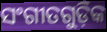
ସଂଗୀତଗୁଡ଼ିକ